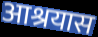
आश्रयास